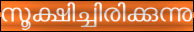
സൂക്ഷിച്ചിരിക്കുന്നു